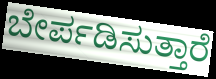
ಬೇರ್ಪಡಿಸುತ್ತಾರೆ